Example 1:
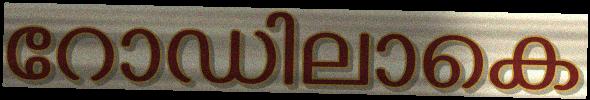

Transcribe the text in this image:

റോഡിലാകെ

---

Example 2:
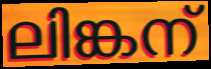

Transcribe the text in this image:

ലിങ്കന്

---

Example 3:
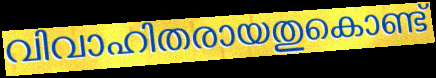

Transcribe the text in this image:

വിവാഹിതരായതുകൊണ്ട്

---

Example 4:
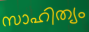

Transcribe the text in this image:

സാഹിത്യം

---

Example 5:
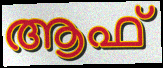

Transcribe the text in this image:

ആഫ്